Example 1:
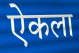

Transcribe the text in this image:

ऐकला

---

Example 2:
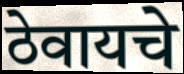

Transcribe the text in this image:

ठेवायचे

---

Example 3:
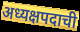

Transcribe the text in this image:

अध्यक्षपदाची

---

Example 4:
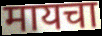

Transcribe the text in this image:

मायचा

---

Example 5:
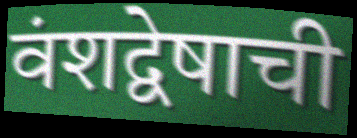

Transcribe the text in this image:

वंशद्वेषाची